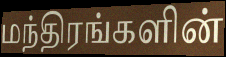
மந்திரங்களின்